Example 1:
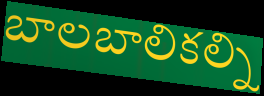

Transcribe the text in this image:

బాలబాలికల్ని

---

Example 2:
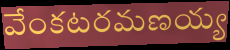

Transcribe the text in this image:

వేంకటరమణయ్య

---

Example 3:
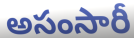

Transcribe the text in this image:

అసంసారీ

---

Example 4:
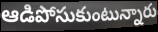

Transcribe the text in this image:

ఆడిపోసుకుంటున్నారు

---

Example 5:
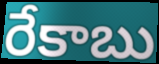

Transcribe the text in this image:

రేకాబు